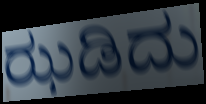
ಝಡಿದು